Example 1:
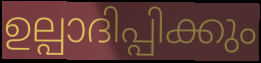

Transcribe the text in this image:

ഉല്പാദിപ്പിക്കും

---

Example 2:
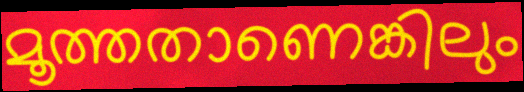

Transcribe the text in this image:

മൂത്തതാണെങ്കിലും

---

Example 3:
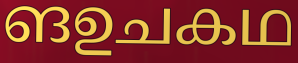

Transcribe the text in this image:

ങഉചകഥ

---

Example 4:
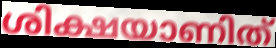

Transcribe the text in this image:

ശിക്ഷയാണിത്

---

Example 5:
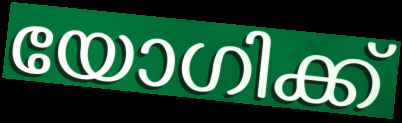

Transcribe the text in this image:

യോഗിക്ക്